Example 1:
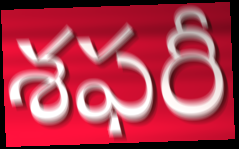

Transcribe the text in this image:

శఫరీ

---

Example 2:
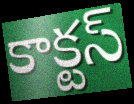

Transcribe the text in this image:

కాక్టస్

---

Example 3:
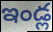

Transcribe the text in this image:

ఇండ్ల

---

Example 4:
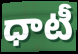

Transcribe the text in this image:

ధాటీ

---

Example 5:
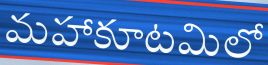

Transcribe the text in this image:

మహాకూటమిలో